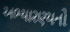
અભ્યારણ્યનો